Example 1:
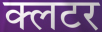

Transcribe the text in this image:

क्लटर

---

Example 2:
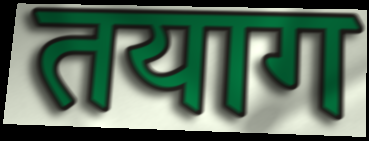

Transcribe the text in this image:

तयाग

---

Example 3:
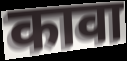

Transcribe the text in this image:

कावा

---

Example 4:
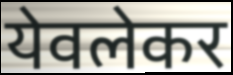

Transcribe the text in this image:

येवलेकर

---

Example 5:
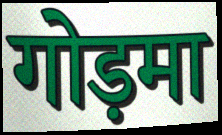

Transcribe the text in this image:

गोड़मा